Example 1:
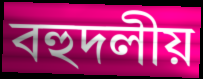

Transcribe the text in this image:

বহুদলীয়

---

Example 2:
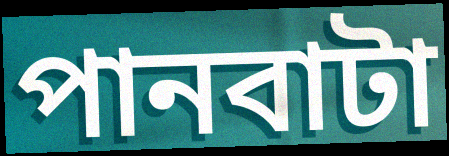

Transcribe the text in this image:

পানবাটা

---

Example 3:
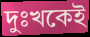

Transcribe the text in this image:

দুঃখকেই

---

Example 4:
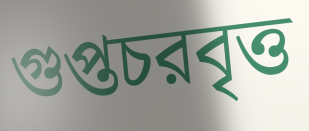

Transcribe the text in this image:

গুপ্তচরবৃত্ত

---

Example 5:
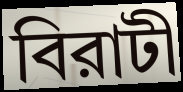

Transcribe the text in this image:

বিরাটী